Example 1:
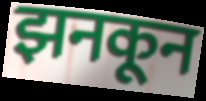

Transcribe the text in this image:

झनकून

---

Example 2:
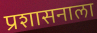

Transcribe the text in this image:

प्रशासनाला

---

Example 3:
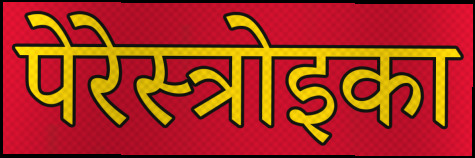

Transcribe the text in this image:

पेरेस्त्रोइका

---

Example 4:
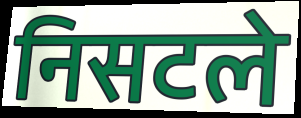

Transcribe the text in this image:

निसटले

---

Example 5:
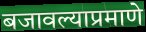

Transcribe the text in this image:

बजावल्याप्रमाणे